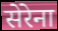
सेरेना